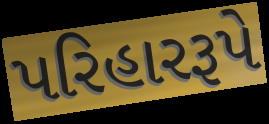
પરિહારરૂપે